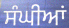
ਸੰਘੀਆਂ